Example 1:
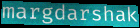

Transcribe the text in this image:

margdarshak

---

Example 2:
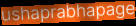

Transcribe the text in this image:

ushaprabhapage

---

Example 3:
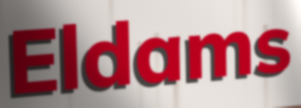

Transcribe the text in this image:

Eldams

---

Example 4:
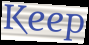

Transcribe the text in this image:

Keep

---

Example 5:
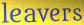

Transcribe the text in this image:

leavers